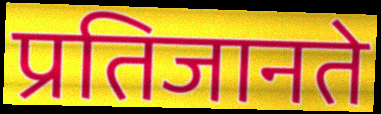
प्रतिजानते